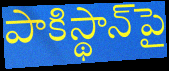
పాకిస్థాన్‌పై